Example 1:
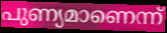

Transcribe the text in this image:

പുണ്യമാണെന്ന്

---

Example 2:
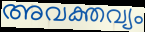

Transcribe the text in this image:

അവക്തവ്യം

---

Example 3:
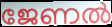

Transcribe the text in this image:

ജേണൽ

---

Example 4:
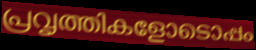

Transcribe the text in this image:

പ്രവൃത്തികളോടൊപ്പം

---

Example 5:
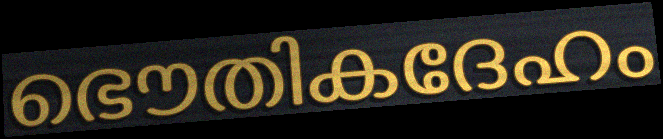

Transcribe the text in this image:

ഭൌതികദേഹം